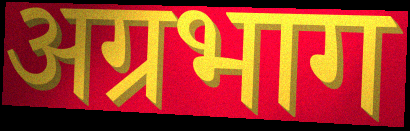
अग्रभाग